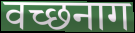
वच्छनाग